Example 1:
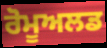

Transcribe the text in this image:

ਰੋਮੂਅਲਡ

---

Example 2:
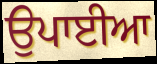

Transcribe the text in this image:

ਉਪਾਈਆ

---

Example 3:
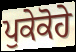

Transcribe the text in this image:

ਪੁਕੇਕੋਹੇ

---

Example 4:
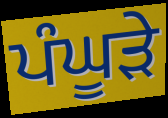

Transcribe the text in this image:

ਪੰਘੂੜੇ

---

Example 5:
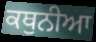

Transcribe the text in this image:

ਕਥੁਨੀਆ